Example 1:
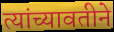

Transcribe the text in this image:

त्यांच्यावतीने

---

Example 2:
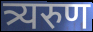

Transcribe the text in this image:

त्र्यरुण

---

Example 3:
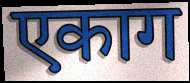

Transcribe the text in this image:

एकाग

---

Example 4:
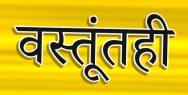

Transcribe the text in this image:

वस्तूंतही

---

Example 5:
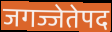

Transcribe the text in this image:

जगज्जेतेपद